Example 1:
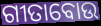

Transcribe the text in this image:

ଗୀତାବୋଉ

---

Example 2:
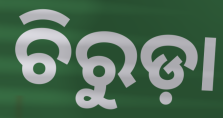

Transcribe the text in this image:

ଚିରୁଡ଼ା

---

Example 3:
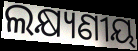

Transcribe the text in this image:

ଲକ୍ଷ୍ୟଣୀୟ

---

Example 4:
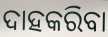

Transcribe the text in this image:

ଦାହକରିବା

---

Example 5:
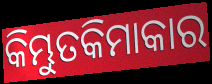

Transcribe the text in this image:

କିମ୍ଭୁତକିମାକାର